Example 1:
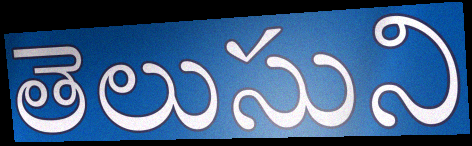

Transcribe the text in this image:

తెలుసుని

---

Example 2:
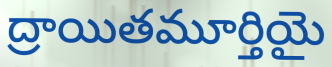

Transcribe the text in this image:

ద్రాయితమూర్తియై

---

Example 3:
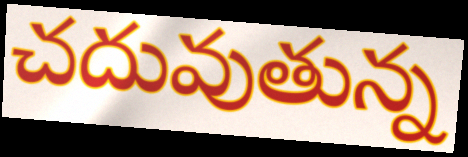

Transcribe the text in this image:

చదువుతున్న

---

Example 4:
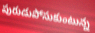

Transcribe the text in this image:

పురుడుపోసుకుంటున్న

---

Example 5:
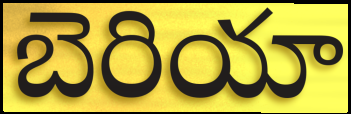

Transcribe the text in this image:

బెరియా